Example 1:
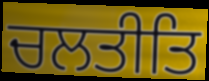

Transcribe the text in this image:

ਚਲਤੀਤਿ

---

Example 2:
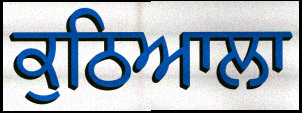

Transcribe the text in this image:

ਕੁਠਿਆਲਾ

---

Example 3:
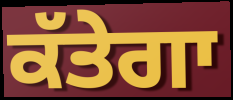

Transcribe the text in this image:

ਕੱਤੇਗਾ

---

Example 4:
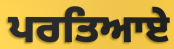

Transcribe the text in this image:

ਪਰਤਿਆਏ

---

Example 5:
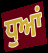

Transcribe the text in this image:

ਧੁਆਂ